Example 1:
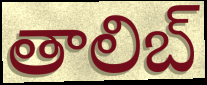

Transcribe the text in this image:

తాలిబ్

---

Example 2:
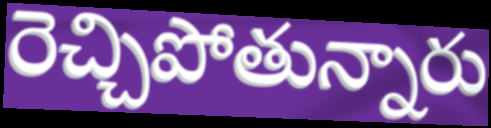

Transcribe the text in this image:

రెచ్చిపోతున్నారు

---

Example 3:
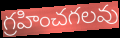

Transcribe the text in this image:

గ్రహించగలవు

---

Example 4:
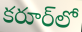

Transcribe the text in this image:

కరూర్‌లో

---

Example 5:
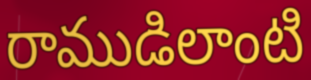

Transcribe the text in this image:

రాముడిలాంటి